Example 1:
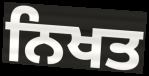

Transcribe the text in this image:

ਨਿਖਤ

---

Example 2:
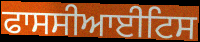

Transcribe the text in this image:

ਫਾਸਸੀਆਈਟਿਸ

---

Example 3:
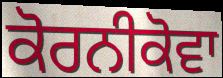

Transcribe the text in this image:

ਕੋਰਨੀਕੋਵਾ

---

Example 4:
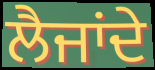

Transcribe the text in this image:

ਲੈਜਾਂਦੇ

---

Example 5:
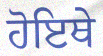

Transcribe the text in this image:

ਹੋਇਥੇ